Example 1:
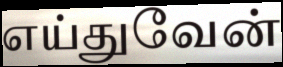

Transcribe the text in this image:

எய்துவேன்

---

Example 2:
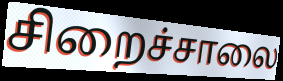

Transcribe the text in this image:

சிறைச்சாலை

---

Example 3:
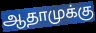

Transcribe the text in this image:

ஆதாமுக்கு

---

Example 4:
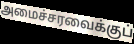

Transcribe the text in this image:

அமைச்சரவைக்குப்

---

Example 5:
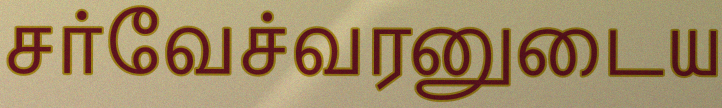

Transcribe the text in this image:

சர்வேச்வரனுடைய